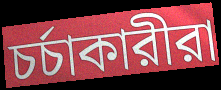
চর্চাকারীরা